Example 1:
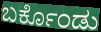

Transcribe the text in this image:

ಬರ್ಕೊಂಡು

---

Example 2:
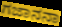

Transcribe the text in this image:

ಗಜಾನನಾ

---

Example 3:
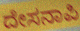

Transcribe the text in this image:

ದೇಸನಾಪಿ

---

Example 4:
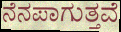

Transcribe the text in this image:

ನೆನಪಾಗುತ್ತವೆ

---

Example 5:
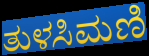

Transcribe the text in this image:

ತುಳಸಿಮಣಿ